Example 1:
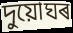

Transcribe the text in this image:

দুয়োঘৰ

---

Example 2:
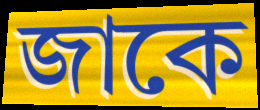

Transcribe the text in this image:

জাকে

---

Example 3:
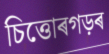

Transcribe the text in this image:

চিত্তোৰগড়ৰ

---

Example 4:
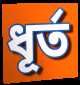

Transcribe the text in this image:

ধূৰ্ত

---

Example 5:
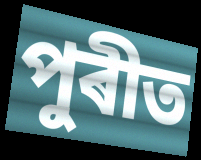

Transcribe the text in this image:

পুৰীত